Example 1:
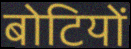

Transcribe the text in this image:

बोटियों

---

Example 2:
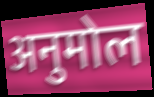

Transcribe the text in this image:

अनुमोल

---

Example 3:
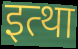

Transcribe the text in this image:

इत्था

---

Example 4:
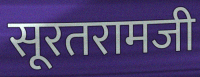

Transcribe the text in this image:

सूरतरामजी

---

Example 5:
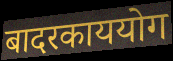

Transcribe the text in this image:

बादरकाययोग